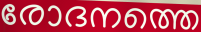
രോദനത്തെ